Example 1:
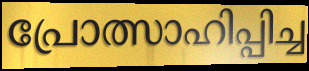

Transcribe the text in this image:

പ്രോത്സാഹിപ്പിച്ച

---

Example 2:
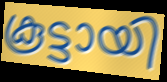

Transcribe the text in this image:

കൂട്ടായി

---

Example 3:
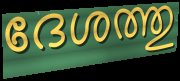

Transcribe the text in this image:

ദേശത്തു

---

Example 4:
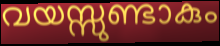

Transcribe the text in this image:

വയസ്സുണ്ടാകും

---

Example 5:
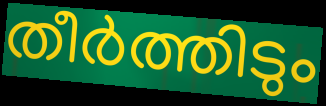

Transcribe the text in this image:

തീർത്തിടും